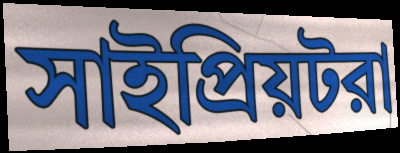
সাইপ্রিয়টরা